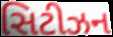
સિટીઝન